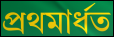
প্ৰথমাৰ্ধত